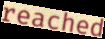
reached